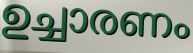
ഉച്ചാരണം